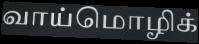
வாய்மொழிக்